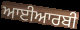
ਆਈਆਰਬੀ